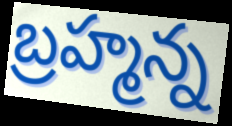
బ్రహ్మన్న